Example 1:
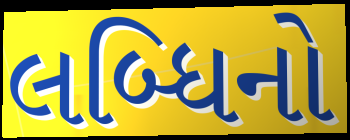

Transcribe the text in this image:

લબ્ધિનો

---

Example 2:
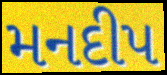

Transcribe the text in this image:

મનદીપ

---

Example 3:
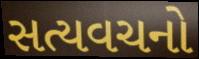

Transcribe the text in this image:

સત્યવચનો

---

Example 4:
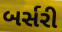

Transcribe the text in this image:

બર્સરી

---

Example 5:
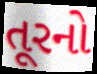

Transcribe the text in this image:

તૂરનો